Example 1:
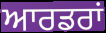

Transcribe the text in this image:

ਆਰਡਰਾਂ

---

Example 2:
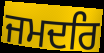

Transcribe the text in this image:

ਜਮਦਰਿ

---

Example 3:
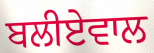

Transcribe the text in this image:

ਬਲੀਏਵਾਲ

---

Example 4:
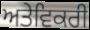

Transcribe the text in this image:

ਅਤੇਵਿਕਰੀ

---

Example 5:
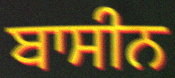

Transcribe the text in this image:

ਬਾਸੀਨ